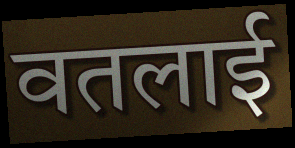
वतलाई